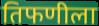
तिफणीला